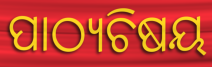
ପାଠ୍ୟଚିଷୟ